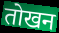
तोखन